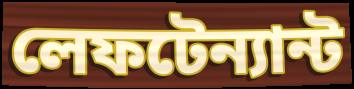
লেফটেন্যান্ট